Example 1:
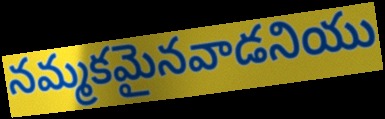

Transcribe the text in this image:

నమ్మకమైనవాడనియు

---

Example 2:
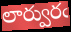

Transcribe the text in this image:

లార్వురఁ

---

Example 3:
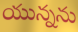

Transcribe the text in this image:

యున్నను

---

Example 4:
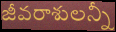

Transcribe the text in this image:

జీవరాశులన్నీ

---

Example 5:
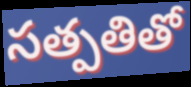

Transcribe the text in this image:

సత్పతితో